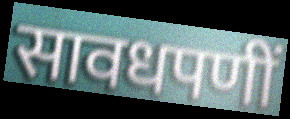
सावधपणीं